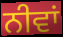
ਨੀਵਾਂ